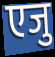
एजु